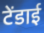
टेंडाई